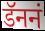
डॅननं